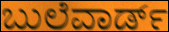
ಬುಲೆವಾರ್ಡ್